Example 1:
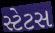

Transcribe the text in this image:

સ્ટેટસ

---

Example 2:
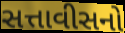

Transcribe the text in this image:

સત્તાવીસનો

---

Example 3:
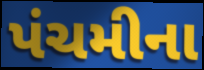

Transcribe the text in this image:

પંચમીના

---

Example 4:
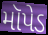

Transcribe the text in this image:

મૉપેડ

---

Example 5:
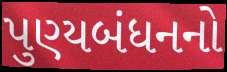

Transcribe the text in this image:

પુણ્યબંધનનો